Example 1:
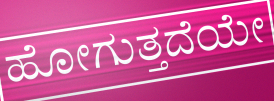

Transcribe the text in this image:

ಹೋಗುತ್ತದೆಯೇ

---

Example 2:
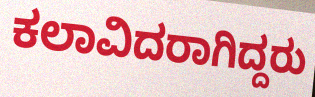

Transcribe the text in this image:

ಕಲಾವಿದರಾಗಿದ್ದರು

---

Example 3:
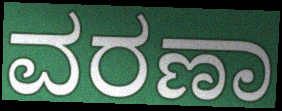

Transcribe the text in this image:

ವರಣಾ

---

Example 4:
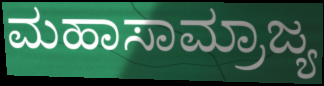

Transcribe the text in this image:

ಮಹಾಸಾಮ್ರಾಜ್ಯ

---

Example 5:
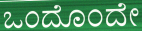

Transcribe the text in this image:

ಒಂದೊಂದೇ